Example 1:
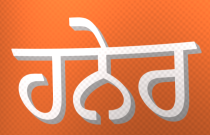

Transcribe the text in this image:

ਹਨੇਰ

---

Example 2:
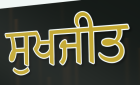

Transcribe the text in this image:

ਸੁਖਜੀਤ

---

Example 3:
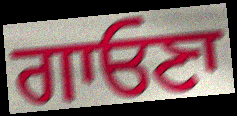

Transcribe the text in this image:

ਗਾਓਣਾ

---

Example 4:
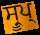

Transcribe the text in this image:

ਸ੍ਰੂਪ੍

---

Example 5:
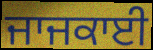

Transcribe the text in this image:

ਜਾਜਕਾਈ